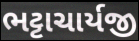
ભટ્ટાચાર્યજી